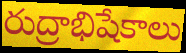
రుద్రాభిషేకాలు